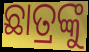
ଛାତ୍ରଙ୍କୁ